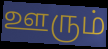
ஊரும்